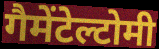
गैमेंटेल्टोमी